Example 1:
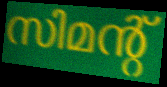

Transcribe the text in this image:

സിമന്റ്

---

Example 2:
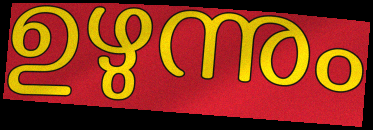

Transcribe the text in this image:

ഉഴുന്നും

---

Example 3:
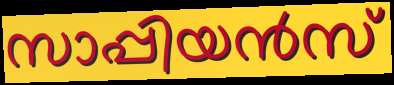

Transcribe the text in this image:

സാപ്പിയൻസ്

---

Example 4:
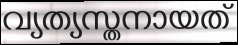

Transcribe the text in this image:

വ്യത്യസ്തനായത്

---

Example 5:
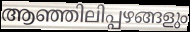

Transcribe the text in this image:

ആഞ്ഞിലിപ്പഴങ്ങളും